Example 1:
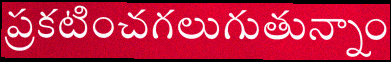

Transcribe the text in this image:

ప్రకటించగలుగుతున్నాం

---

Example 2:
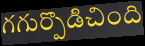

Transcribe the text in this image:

గగుర్పొడిచింది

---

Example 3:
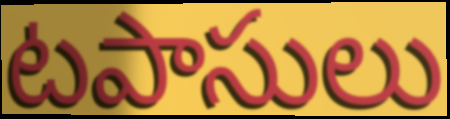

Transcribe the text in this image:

టపాసులు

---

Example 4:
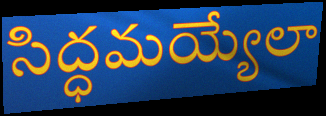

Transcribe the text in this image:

సిద్ధమయ్యేలా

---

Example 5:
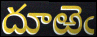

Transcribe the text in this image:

దూఱెఁ